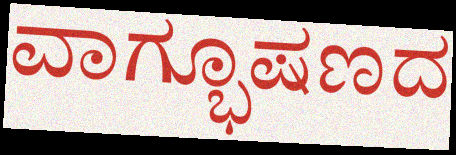
ವಾಗ್ಭೂಷಣದ